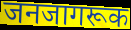
जनजागरूक